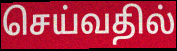
செய்வதில்